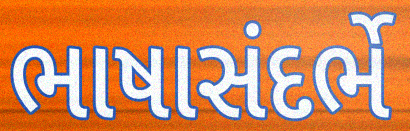
ભાષાસંદર્ભે